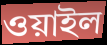
ওয়াইল